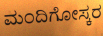
ಮಂದಿಗೋಸ್ಕರ